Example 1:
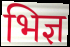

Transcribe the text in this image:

भिज्ञ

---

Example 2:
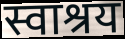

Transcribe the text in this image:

स्वाश्रय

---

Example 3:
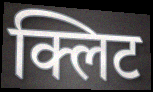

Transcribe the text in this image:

क्लिट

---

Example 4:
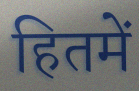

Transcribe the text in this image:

हितमें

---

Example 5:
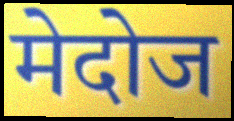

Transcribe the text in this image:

मेदोज